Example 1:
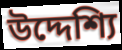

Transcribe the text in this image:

উদ্দেশ্যি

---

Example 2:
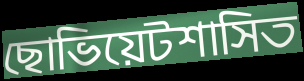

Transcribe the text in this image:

ছোভিয়েটশাসিত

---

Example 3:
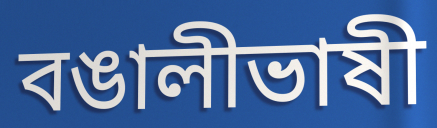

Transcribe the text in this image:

বঙালীভাষী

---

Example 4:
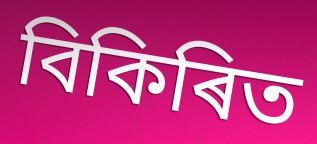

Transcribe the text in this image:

বিকিৰিত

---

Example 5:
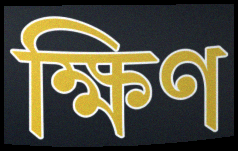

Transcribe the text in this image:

ক্ষিণ